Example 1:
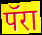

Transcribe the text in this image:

पॅरा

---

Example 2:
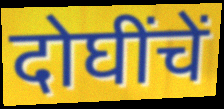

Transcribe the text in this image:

दोघींचें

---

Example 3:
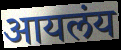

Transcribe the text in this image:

आयलंय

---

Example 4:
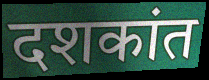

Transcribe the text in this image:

दशकांत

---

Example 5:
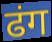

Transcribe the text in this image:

ढंग